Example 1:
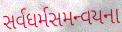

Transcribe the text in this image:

સર્વધર્મસમન્વયના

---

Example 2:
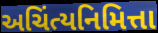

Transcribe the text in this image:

અચિંત્યનિમિત્તા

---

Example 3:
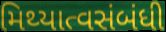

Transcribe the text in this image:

મિથ્યાત્વસંબંધી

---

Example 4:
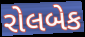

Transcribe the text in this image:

રોલબેક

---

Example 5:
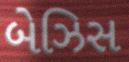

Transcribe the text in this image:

બેઝિસ